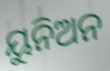
ୟୁନିଅନ